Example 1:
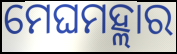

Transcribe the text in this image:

ମେଘମହ୍ଲାର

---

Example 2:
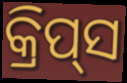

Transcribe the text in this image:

କ୍ରିପ୍‍ସ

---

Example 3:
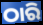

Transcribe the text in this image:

ଠାରି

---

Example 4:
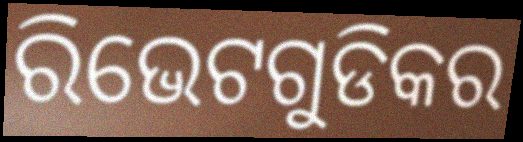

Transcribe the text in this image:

ରିଭେଟଗୁଡିକର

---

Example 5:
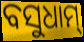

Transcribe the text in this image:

ବସୁଧାମ୍